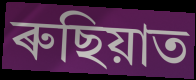
ৰুছিয়াত